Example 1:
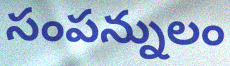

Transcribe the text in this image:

సంపన్నులం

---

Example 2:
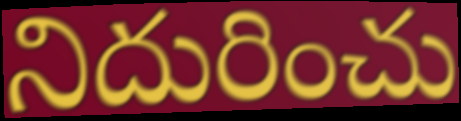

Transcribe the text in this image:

నిదురించు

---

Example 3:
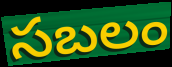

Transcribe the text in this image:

సబలం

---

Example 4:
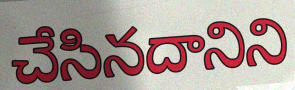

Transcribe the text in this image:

చేసినదానిని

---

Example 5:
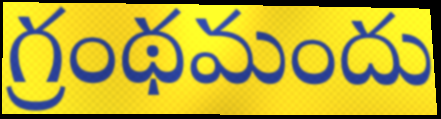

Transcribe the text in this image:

గ్రంథమందు